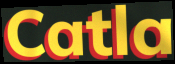
Catla